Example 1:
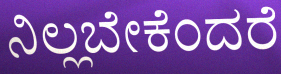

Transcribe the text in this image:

ನಿಲ್ಲಬೇಕೆಂದರೆ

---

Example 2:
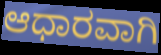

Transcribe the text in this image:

ಆಧಾರವಾಗಿ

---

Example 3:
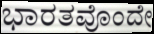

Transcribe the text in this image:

ಭಾರತವೊಂದೇ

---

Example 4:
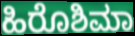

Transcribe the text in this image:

ಹಿರೊಶಿಮಾ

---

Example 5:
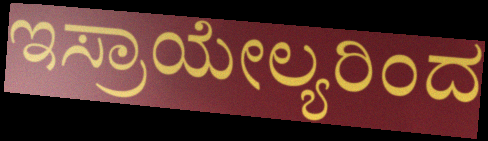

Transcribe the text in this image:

ಇಸ್ರಾಯೇಲ್ಯರಿಂದ